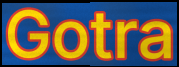
Gotra